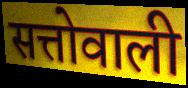
सत्तोवाली